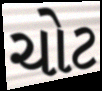
ચોટ